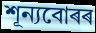
শূন্যবোৰৰ